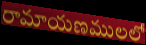
రామాయణములలో